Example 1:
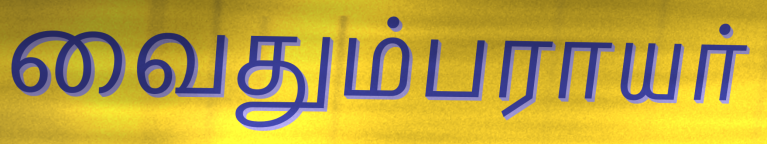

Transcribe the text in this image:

வைதும்பராயர்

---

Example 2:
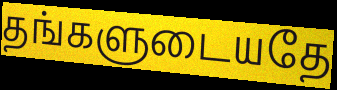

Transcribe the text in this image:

தங்களுடையதே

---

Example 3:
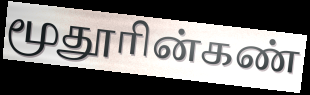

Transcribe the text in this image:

மூதூரின்கண்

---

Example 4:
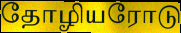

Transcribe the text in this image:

தோழியரோடு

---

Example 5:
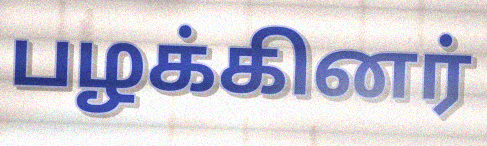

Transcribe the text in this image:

பழக்கினர்